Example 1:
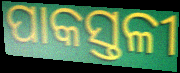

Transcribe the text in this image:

ପାକସ୍ତଳୀ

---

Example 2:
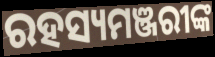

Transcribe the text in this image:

ରହସ୍ୟମଞ୍ଜରୀଙ୍କ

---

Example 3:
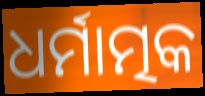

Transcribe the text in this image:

ଧର୍ମାତ୍ମକ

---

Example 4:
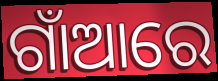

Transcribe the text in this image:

ଗାଁଆରେ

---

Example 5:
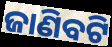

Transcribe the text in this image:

ଜାଣିବଟି